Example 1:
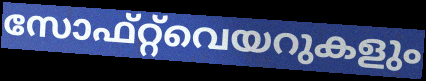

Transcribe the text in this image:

സോഫ്റ്റ്‌വെയറുകളും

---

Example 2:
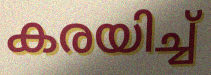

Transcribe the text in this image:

കരയിച്ച്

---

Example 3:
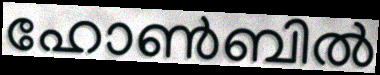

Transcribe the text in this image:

ഹോൺബിൽ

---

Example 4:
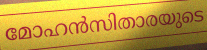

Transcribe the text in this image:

മോഹൻസിതാരയുടെ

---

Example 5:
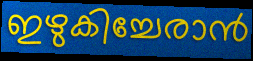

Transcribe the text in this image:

ഇഴുകിച്ചേരാൻ